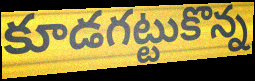
కూడగట్టుకొన్న